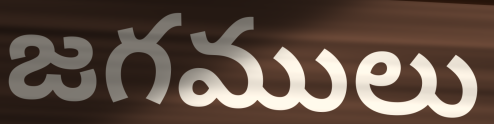
జగములు